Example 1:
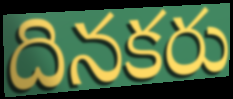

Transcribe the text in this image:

దినకరు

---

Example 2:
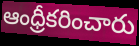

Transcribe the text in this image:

ఆంధ్రీకరించారు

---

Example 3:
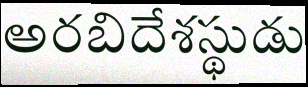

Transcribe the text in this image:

అరబిదేశస్థుడు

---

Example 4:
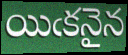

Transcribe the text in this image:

యిఁకనైన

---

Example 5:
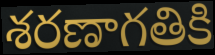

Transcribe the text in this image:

శరణాగతికి